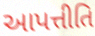
આપત્તીતિ